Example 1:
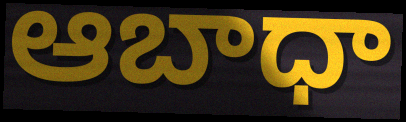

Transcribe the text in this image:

ఆబాధా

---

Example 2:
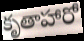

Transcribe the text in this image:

కృతాహారో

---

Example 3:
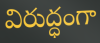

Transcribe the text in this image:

విరుద్ధంగా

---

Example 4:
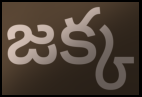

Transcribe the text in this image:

జక్క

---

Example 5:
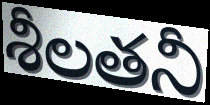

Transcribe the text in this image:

శీలతనీ